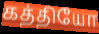
கத்தியோ